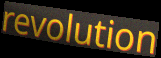
revolution